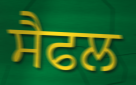
ਸੈਫਲ